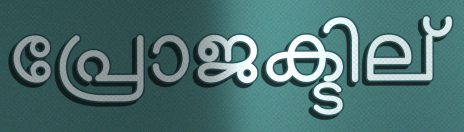
പ്രോജക്ടില്